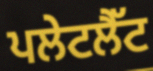
ਪਲੇਟਲੈੱਟ